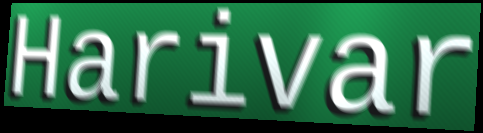
Harivar